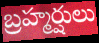
బ్రహ్మర్షులు